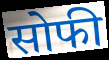
सोफी